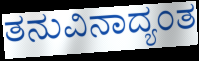
ತನುವಿನಾದ್ಯಂತ